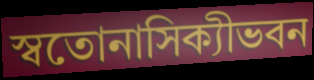
স্বতোনাসিক্যীভবন